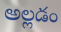
అల్లడం